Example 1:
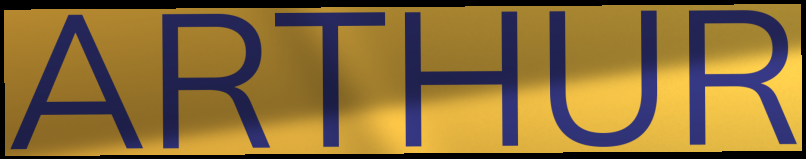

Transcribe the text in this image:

ARTHUR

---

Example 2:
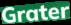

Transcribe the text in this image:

Grater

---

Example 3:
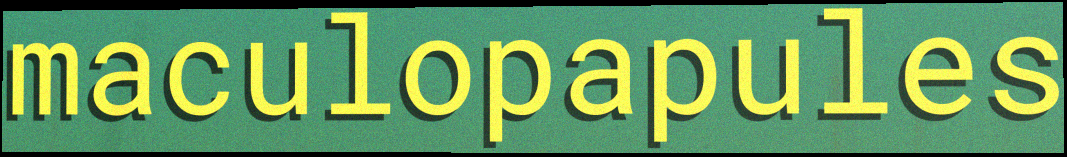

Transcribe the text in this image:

maculopapules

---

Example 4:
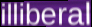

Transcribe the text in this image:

illiberal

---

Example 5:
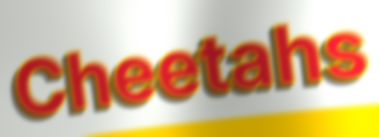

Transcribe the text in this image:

Cheetahs